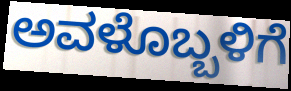
ಅವಳೊಬ್ಬಳಿಗೆ